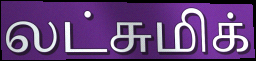
லட்சுமிக்